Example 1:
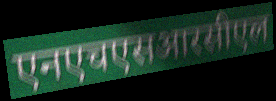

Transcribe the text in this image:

एनएचएसआरसीएल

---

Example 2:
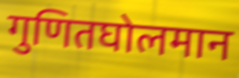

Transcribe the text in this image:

गुणितघोलमान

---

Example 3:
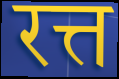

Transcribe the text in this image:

रत्त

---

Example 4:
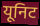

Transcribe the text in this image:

यूनिट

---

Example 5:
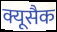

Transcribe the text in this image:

क्यूसैक